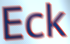
Eck